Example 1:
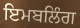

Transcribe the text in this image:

ਇਮਬਲਿੰਗ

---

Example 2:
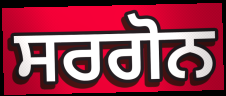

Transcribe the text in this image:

ਸਰਗੋਨ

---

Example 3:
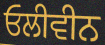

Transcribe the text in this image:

ਓਲੀਵੀਨ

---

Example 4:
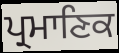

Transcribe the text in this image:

ਪ੍ਰਮਾਣਿਕ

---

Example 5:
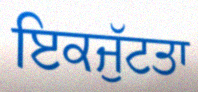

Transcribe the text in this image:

ਇਕਜੁੱਟਤਾ